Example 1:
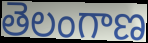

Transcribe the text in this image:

తెలంగాణ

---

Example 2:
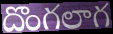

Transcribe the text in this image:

దొంగలాగ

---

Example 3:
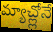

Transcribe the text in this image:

మ్యాచ్ల్లోనే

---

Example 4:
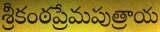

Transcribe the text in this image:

శ్రీకంఠప్రేమపుత్రాయ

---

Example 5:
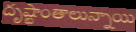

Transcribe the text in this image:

దృష్టాంతాలున్నాయి